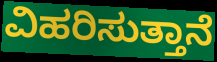
ವಿಹರಿಸುತ್ತಾನೆ